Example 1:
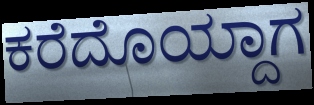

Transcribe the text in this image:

ಕರೆದೊಯ್ದಾಗ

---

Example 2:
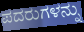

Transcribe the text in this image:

ಪದರುಗಳನ್ನು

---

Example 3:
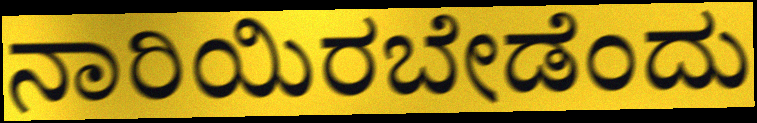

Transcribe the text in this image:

ನಾರಿಯಿರಬೇಡೆಂದು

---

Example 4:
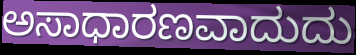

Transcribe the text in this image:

ಅಸಾಧಾರಣವಾದುದು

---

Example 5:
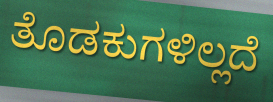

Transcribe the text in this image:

ತೊಡಕುಗಳಿಲ್ಲದೆ